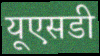
यूएसडी